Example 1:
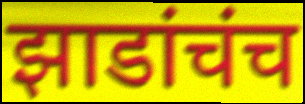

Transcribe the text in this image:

झाडांचंच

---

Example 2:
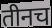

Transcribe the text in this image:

तीनच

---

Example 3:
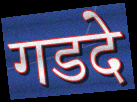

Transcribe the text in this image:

गडदे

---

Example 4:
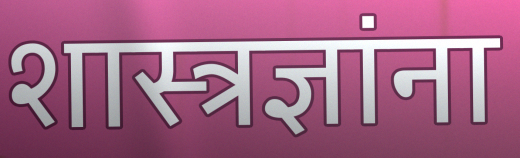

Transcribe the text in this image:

शास्त्रज्ञांना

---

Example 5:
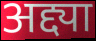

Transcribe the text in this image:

अद्द्या